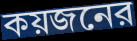
কয়জনের